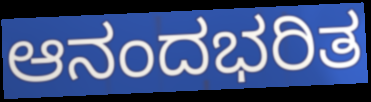
ಆನಂದಭರಿತ